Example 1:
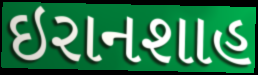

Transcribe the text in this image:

ઇરાનશાહ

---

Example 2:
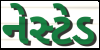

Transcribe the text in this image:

નેસ્ટેડ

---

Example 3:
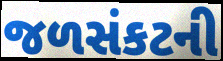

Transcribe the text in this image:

જળસંકટની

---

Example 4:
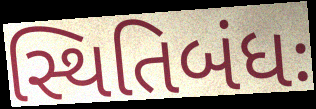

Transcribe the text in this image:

સ્થિતિબંધઃ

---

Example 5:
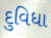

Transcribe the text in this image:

દુવિધા